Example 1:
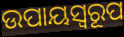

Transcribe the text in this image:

ଉପାୟସ୍ୱରୂପ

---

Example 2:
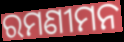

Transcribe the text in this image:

ରମଣୀମନ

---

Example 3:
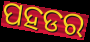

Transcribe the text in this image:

ପହଡର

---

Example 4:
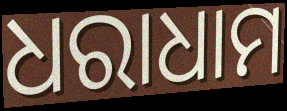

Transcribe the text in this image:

ଧରାଧାମ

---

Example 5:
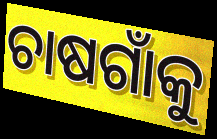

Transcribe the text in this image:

ଚାଷଗାଁକୁ